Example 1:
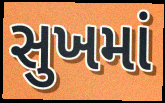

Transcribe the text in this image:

સુખમાં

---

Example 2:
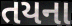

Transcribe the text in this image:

તયના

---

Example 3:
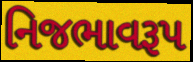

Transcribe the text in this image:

નિજભાવરૂપ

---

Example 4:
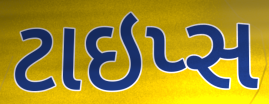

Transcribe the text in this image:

ટાઇપ્સ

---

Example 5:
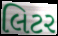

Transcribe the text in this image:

લિટર